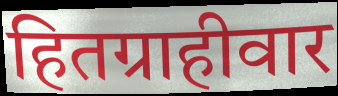
हितग्राहीवार